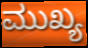
ಮುಖ್ಯ